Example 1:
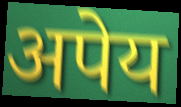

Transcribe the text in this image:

अपेय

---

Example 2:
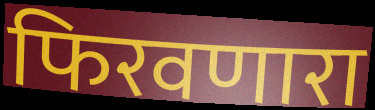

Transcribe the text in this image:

फिरवणारा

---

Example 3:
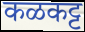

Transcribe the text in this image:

कळकट्ट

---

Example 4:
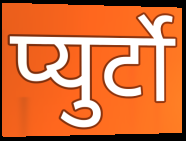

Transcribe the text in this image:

प्युर्टो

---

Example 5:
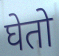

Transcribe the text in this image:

घेतो